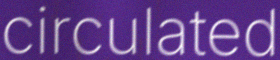
circulated